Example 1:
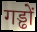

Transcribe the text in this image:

गड्ढों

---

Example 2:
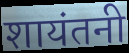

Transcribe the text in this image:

शायंतनी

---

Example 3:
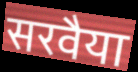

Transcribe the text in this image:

सरवैया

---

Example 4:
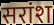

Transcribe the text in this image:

सरांश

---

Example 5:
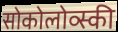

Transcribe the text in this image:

सोकोलोव्स्की